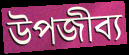
উপজীব্য